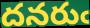
దనరుఁ